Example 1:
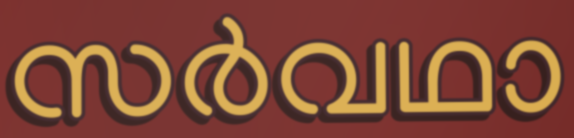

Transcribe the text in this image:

സർവഥാ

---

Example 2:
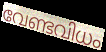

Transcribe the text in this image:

വേണ്ടവിധം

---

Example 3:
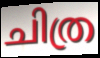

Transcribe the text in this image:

ചിത്ര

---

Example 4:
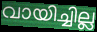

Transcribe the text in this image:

വായിച്ചില്ല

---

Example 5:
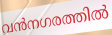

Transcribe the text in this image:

വൻനഗരത്തിൽ